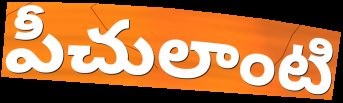
పీచులాంటి